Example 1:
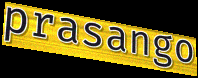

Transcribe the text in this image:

prasango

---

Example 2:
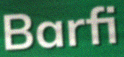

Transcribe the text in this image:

Barfi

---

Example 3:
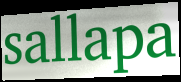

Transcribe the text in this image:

sallapa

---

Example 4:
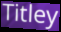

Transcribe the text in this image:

Titley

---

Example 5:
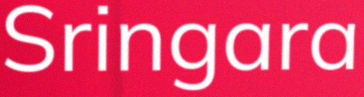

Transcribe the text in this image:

Sringara